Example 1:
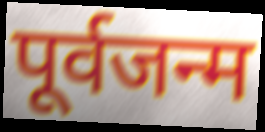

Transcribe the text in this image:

पूर्वजन्म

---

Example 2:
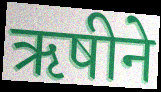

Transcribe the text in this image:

ऋषीने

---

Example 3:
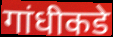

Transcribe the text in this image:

गांधीकडे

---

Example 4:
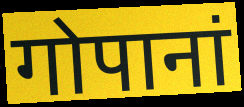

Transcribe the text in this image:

गोपानां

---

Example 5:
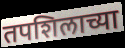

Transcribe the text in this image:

तपशिलाच्या